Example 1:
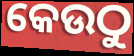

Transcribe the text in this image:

କେଉଠୁ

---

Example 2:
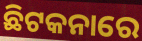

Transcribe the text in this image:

ଛିଟକନାରେ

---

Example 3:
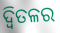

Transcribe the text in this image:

ଦ୍ୱିତଳର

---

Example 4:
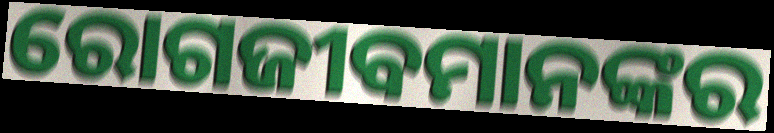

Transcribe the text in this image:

ରୋଗଜୀବମାନଙ୍କର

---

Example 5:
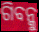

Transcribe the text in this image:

ଗିବନ୍କୁ